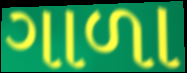
ગાળા